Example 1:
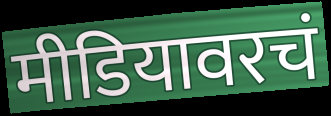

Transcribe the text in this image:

मीडियावरचं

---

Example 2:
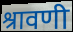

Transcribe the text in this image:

श्रावणी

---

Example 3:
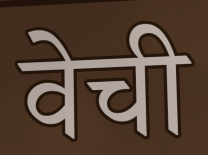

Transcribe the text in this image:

वेची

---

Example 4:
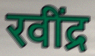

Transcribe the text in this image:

रवींद्र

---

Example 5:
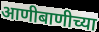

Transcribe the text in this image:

आणीबाणीच्या